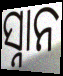
ସ୍ନାନ